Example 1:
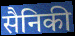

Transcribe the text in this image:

सैनिकी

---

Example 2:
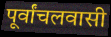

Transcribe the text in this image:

पूर्वांचलवासी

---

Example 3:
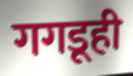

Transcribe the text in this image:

गगडूही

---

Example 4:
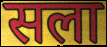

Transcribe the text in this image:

सला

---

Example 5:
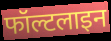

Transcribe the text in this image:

फॉल्टलाइन